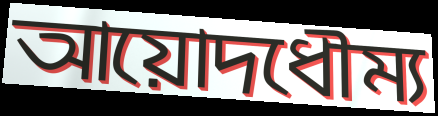
আয়োদধৌম্য